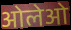
ओलेओ